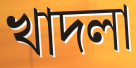
খাদলা